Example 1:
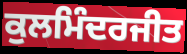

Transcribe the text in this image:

ਕੁਲਮਿੰਦਰਜੀਤ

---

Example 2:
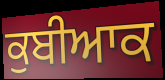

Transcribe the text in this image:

ਕੁਬੀਆਕ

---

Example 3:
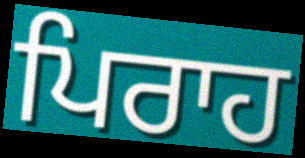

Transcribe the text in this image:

ਪਿਰਾਹ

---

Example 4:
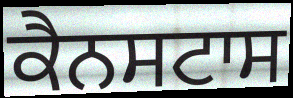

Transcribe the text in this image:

ਕੈਨਸਟਾਸ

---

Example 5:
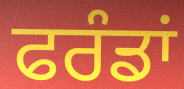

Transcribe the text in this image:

ਫਰੰਡਾਂ